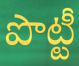
పొట్టీ